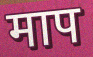
माप